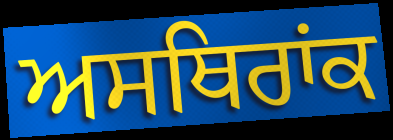
ਅਸਥਿਰਾਂਕ